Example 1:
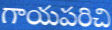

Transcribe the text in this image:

గాయపరిచి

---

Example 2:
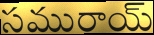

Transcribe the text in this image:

సమురాయ్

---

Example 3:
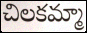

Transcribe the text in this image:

చిలకమ్మా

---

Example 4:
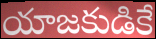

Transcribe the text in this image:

యాజకుడికే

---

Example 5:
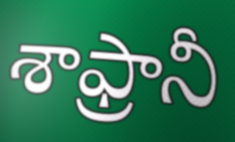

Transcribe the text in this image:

శాఫ్రానీ